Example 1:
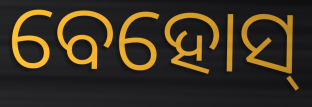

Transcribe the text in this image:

ବେହୋସ୍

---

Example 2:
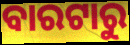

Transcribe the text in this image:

ବାରଟାରୁ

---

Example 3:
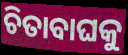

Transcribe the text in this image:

ଚିତାବାଘକୁ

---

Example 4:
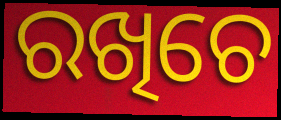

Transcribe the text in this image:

ରଖିଚେ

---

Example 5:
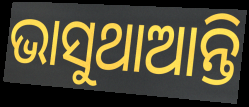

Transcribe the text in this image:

ଭାସୁଥାଆନ୍ତି